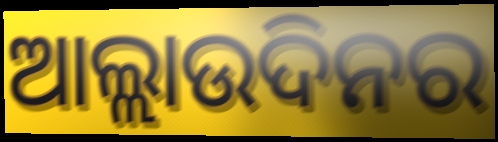
ଆଲ୍ଲାଉଦିନର